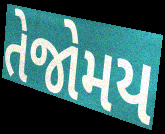
તેજોમય